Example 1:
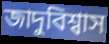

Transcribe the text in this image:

জাদুবিশ্বাস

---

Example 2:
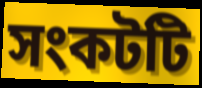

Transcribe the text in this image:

সংকটটি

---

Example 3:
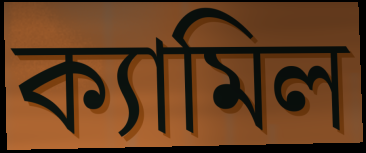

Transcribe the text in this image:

ক্যামিল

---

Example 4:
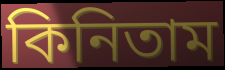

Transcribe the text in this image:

কিনিতাম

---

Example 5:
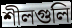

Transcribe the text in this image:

শীলগুলি